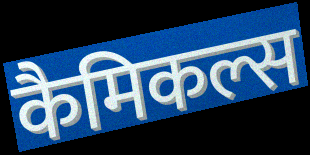
कैमिकल्स